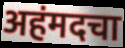
अहंमदचा